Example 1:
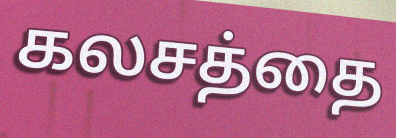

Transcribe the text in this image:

கலசத்தை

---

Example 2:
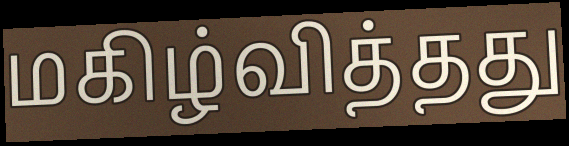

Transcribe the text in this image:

மகிழ்வித்தது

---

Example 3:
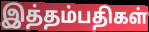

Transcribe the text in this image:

இத்தம்பதிகள்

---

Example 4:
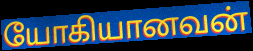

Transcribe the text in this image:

யோகியானவன்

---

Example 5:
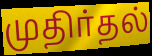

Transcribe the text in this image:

முதிர்தல்